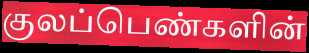
குலப்பெண்களின்